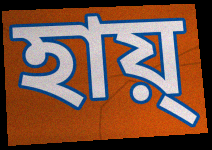
হায়্